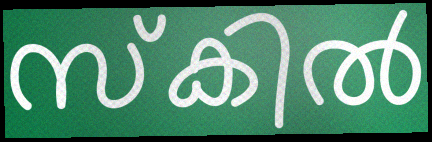
സ്കിൽ